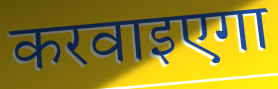
करवाइएगा